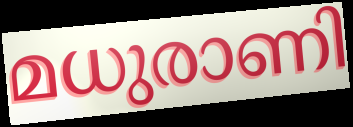
മധുരാണി